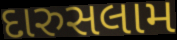
દારુસલામ